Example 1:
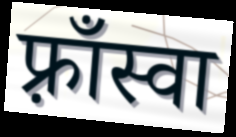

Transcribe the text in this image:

फ़्राँस्वा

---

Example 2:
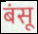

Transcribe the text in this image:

बंसू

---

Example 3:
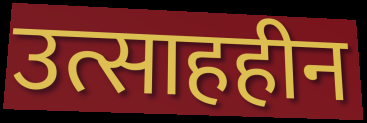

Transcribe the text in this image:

उत्साहहीन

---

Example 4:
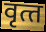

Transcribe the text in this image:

वृत्‍त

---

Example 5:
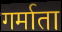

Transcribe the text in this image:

गर्माता